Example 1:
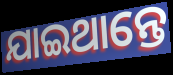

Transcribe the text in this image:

ଯାଇଥାନ୍ତେ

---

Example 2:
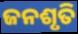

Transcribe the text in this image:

ଜନଶୃତି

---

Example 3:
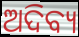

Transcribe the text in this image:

ଅଦିବ୍ୟ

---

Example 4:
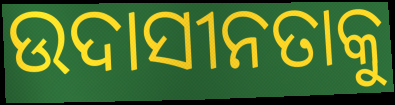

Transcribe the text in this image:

ଉଦାସୀନତାକୁ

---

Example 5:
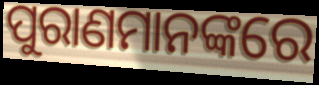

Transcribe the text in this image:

ପୁରାଣମାନଙ୍କରେ